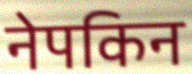
नेपकिन